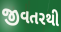
જીવતરથી